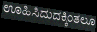
ಊಹಿಸಿದುದಕ್ಕಿಂತಲೂ